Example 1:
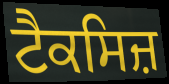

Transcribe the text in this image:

ਟੈਕਸਿਜ਼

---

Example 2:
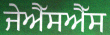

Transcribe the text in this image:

ਜੇਐੱਸਐੱਸ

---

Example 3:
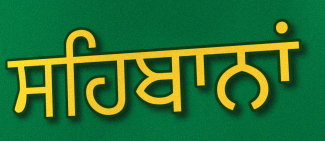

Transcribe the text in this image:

ਸਹਿਬਾਨਾਂ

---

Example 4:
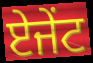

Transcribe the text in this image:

ਏਜੇਂਟ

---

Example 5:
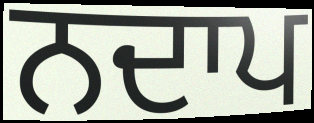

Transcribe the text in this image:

ਨਦਾਪ